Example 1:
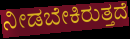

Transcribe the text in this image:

ನೀಡಬೇಕಿರುತ್ತದೆ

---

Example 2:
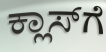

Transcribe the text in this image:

ಕ್ಲಾಸ್‌ಗೆ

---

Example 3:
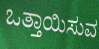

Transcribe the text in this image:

ಒತ್ತಾಯಿಸುವ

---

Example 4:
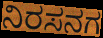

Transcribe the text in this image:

ನಿರಸನಗ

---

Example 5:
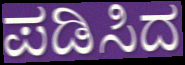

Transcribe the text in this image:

ಪಡಿಸಿದ